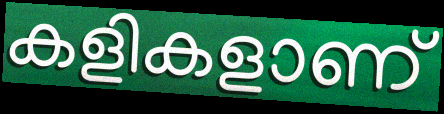
കളികളാണ്